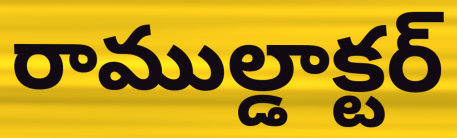
రాముల్డాక్టర్